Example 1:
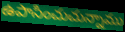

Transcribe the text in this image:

ఉపాసించుచున్నాము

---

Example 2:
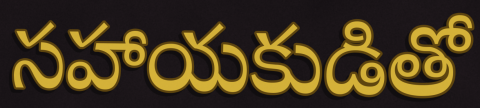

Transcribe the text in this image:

సహాయకుడితో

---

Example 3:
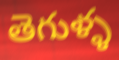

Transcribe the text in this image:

తెగుళ్ళ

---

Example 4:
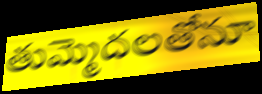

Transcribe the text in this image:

తుమ్మెదలతోనూ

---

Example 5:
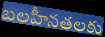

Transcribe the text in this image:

బలహీనతలకు